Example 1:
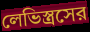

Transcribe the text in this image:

লেভিস্ত্রসের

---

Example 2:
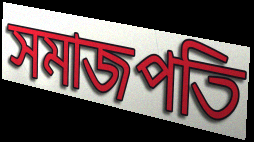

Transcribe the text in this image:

সমাজপতি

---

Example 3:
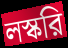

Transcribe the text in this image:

লস্করি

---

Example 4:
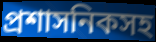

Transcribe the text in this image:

প্রশাসনিকসহ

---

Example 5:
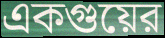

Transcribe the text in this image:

একগুয়ের